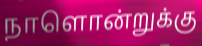
நாளொன்றுக்கு